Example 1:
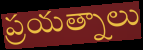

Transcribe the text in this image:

ప్రయత్నాలు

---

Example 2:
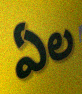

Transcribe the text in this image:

ఏల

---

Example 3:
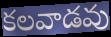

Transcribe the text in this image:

కలవాడవు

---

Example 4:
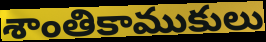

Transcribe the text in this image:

శాంతికాముకులు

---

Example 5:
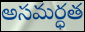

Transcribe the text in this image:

అసమర్ధత